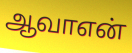
ஆவாஎன்